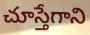
చూస్తేగాని